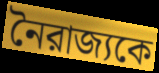
নৈরাজ্যকে